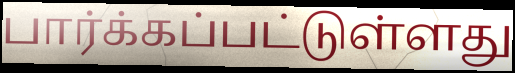
பார்க்கப்பட்டுள்ளது